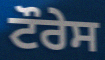
ਟੌਰੇਸ